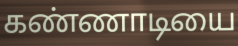
கண்ணாடியை